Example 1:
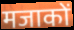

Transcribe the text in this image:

मजाकों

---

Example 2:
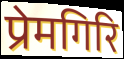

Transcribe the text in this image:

प्रेमगिरि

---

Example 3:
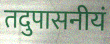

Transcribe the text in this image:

तदुपासनीयं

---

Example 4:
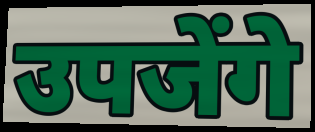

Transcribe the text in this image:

उपजेंगे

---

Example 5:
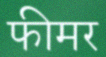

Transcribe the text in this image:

फीमर